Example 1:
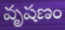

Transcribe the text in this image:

వృషణం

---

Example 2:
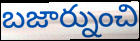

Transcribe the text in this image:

బజార్నుంచి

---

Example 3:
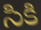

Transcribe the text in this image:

సికి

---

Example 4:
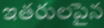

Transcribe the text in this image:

ఇతరులపైన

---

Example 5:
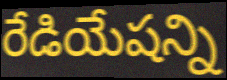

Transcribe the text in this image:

రేడియేషన్ని